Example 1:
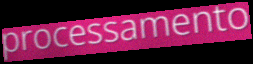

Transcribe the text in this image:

processamento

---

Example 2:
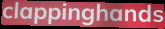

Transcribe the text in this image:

clappinghands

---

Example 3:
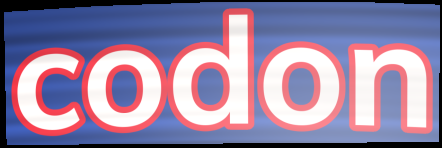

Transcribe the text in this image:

codon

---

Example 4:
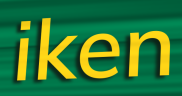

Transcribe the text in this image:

iken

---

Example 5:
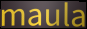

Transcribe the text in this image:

maula